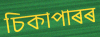
চিকাপাৰৰ